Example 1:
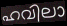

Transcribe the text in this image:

ഹവിലാ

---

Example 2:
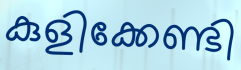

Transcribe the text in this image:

കുളിക്കേണ്ടി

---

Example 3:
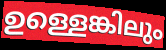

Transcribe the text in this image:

ഉള്ളെങ്കിലും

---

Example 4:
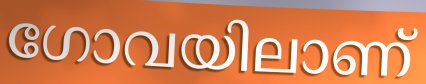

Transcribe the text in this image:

ഗോവയിലാണ്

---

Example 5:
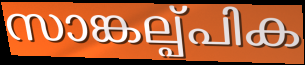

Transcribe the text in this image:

സാങ്കല്പ്പിക